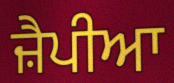
ਜ਼ੈਪੀਆ